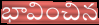
భావించిన